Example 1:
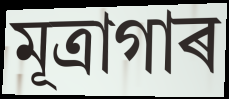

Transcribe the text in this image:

মূত্ৰাগাৰ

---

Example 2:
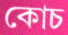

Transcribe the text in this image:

কোচ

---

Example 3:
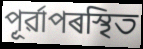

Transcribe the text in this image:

পূৰ্ৱাপৰস্থিত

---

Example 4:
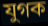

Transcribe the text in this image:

যুগক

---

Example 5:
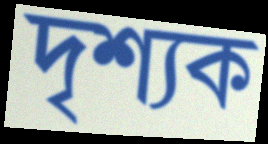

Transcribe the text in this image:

দৃশ্যক